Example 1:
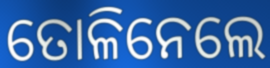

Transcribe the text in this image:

ତୋଳିନେଲେ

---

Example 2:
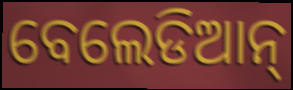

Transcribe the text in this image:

ବେଲେଡିଆନ୍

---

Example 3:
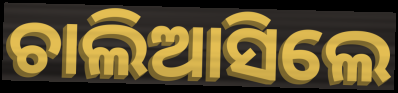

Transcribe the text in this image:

ଚାଲିଆସିଲେ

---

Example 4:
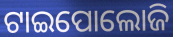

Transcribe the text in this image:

ଟାଇପୋଲୋଜି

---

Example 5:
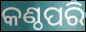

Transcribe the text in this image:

କଣ୍ଠପରି